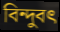
বিন্দুবৎ